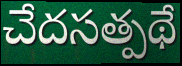
చేదసత్పథే